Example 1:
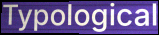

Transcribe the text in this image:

Typological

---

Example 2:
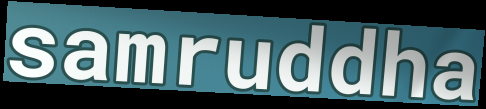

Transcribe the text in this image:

samruddha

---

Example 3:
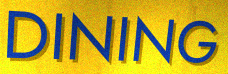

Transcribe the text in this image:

DINING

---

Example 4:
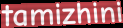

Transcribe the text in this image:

tamizhini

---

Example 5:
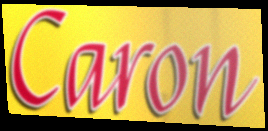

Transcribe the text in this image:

Caron